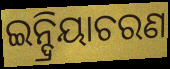
ଇନ୍ଦ୍ରିୟାଚରଣ